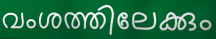
വംശത്തിലേക്കും